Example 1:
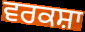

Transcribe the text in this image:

ਵਰਕਸ਼ਾ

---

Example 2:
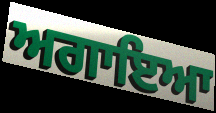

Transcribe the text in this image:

ਅਗਾਇਆ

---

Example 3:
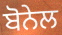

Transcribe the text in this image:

ਬੋਨੇਲ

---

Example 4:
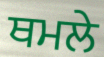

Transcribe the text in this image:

ਥਮਲੇ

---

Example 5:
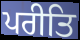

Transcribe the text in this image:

ਪਰੀਤਿ